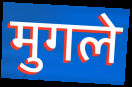
मुगले